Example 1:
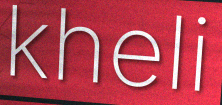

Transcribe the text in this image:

kheli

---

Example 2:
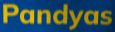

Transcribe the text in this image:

Pandyas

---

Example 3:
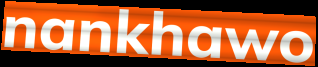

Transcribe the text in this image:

nankhawo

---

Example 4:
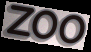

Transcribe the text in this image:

ZOO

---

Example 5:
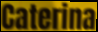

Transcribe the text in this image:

Caterina